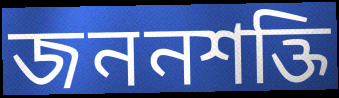
জননশক্তি